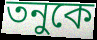
তনুকে